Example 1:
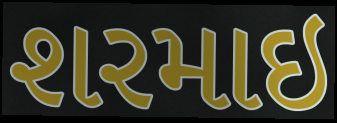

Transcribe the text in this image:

શરમાઇ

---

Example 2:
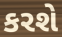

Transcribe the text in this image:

કરશે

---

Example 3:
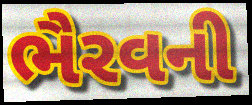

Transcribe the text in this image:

ભૈરવની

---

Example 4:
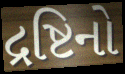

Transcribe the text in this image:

દ્રષ્ટિનો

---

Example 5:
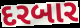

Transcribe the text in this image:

દરબાર